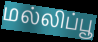
மல்லிப்பூ